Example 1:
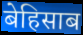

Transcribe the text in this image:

बेहिसाब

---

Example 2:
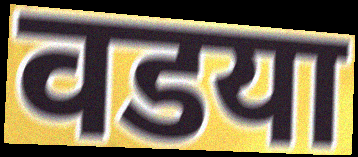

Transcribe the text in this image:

वडया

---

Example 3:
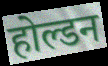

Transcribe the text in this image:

होल्डन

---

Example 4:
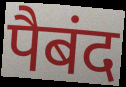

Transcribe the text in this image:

पैबंद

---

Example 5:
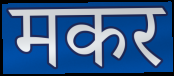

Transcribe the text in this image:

मकर